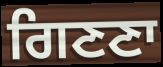
ਗਿਣਣਾ